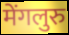
मेंगलुरु